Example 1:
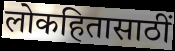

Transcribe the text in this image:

लोकहितासाठीं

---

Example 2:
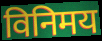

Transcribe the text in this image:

विनिमय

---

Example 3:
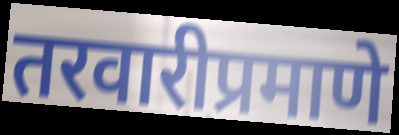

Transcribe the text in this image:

तरवारीप्रमाणे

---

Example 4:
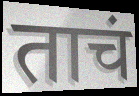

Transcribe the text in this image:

ताचं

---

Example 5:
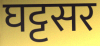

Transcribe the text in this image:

घट्टसर